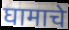
घामाचे